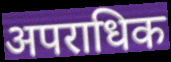
अपराधिक